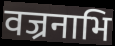
वज्रनाभि